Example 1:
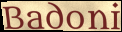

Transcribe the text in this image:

Badoni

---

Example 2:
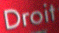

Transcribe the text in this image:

Droit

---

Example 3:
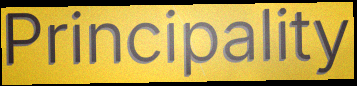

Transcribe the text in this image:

Principality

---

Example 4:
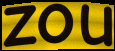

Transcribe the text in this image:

zou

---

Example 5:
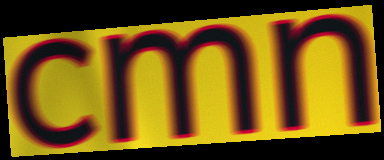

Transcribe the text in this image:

cmn